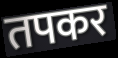
तपकर